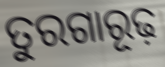
ତୁରଗାରୂଢ଼